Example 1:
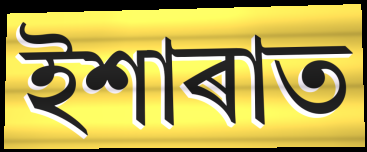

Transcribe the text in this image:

ইশাৰাত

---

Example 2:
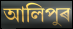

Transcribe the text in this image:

আলিপুৰ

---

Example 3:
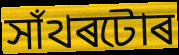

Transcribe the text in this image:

সাঁথৰটোৰ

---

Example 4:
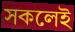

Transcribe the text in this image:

সকলেই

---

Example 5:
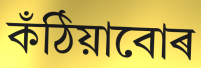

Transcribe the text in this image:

কঁঠিয়াবোৰ